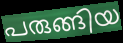
പരുങ്ങിയ